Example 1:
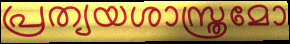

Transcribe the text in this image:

പ്രത്യയശാസ്ത്രമോ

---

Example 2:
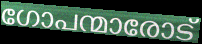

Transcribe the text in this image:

ഗോപന്മാരോട്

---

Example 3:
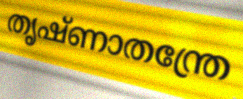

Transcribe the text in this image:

തൃഷ്ണാതന്ത്രേ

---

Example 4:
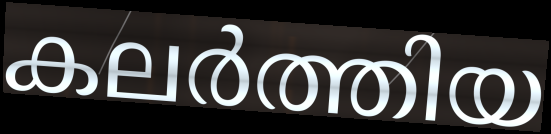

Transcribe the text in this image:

കലർത്തിയ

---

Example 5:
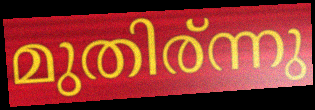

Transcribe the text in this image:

മുതിര്ന്നു